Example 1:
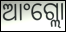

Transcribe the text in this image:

ଆଂଗ୍ଲୋ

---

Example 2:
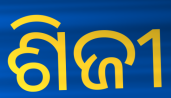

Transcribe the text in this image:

ଶିଜୀ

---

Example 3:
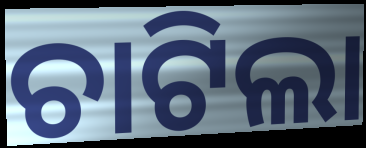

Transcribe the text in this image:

ଚାଟିଲା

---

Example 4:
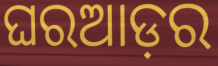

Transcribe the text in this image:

ଘରଆଡ଼ର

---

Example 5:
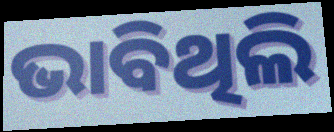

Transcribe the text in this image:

ଭାବିଥିଲି